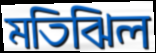
মতিঝিল